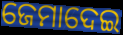
ଜେମାଦେଇ